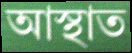
আস্থাত